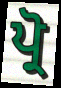
ਪ੍ਰੋ